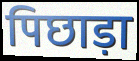
पिछाड़ा